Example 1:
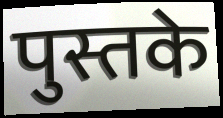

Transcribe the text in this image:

पुस्‍तके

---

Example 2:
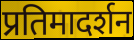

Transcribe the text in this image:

प्रतिमादर्शन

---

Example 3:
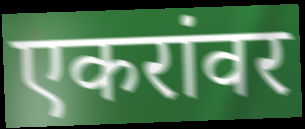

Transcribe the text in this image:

एकरांवर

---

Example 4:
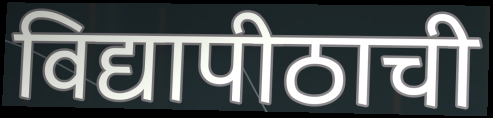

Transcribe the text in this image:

विद्यापीठाची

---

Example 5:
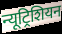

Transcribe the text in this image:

न्यूट्रिशियन